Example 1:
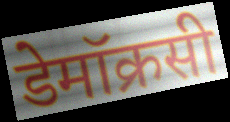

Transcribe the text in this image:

डेमॉक्रसी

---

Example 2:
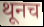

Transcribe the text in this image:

थूनच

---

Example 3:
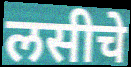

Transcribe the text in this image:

लसीचे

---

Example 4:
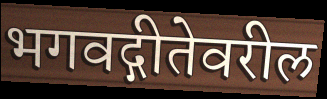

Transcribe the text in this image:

भगवद्गीतेवरील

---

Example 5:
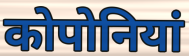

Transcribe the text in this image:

कोपोनियां